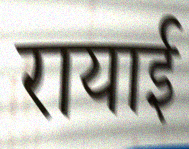
रायाई